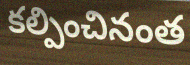
కల్పించినంత